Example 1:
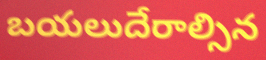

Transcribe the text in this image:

బయలుదేరాల్సిన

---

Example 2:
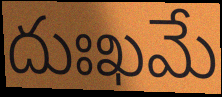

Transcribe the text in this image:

దుఃఖమే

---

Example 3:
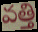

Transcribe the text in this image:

వత్తి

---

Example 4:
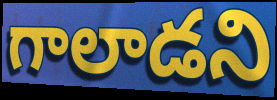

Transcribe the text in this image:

గాలాడని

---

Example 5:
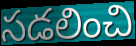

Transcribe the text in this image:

సడలించి